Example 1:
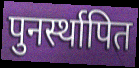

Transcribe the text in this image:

पुनर्स्थापित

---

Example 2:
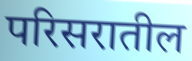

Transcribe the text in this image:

परिसरातील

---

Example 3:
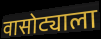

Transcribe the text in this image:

वासोट्याला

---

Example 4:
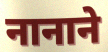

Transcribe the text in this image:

नानाने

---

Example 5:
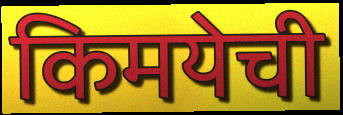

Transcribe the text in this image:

किमयेची